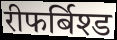
रीफर्बिश्ड